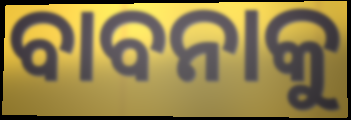
ବାବନାକୁ